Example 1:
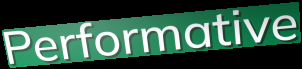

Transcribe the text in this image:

Performative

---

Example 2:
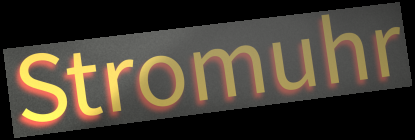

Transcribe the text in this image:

Stromuhr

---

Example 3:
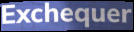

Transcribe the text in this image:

Exchequer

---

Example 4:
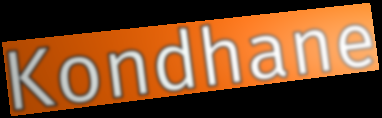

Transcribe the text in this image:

Kondhane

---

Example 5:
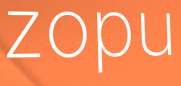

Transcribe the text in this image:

zopu